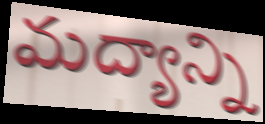
మద్యాన్ని